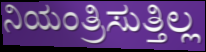
ನಿಯಂತ್ರಿಸುತ್ತಿಲ್ಲ